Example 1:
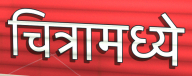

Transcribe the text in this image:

चित्रामध्ये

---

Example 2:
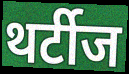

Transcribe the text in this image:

थर्टीज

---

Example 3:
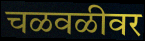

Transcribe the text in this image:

चळवळीवर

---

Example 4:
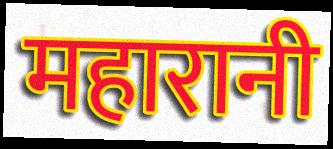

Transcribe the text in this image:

महारानी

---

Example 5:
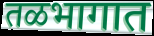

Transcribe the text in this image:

तळभागात